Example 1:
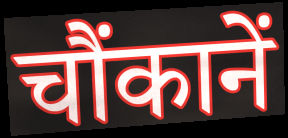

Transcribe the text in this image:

चौंकानें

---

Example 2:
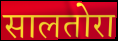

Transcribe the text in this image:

सालतोरा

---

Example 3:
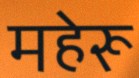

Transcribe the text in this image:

महेरू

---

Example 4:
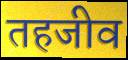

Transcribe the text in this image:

तहजीव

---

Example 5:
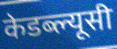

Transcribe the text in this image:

केडब्ल्यूसी